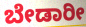
ಬೇಡಾರೀ